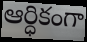
ఆర్ధికంగా